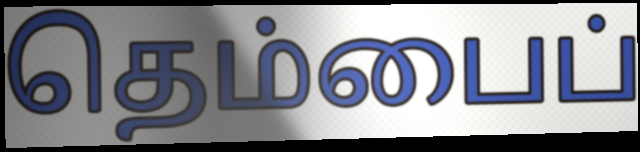
தெம்பைப்